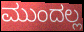
ಮುಂದಲ್ಲ